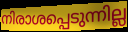
നിരാശപ്പെടുന്നില്ല